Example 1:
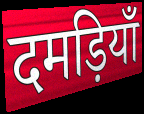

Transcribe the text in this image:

दमड़ियाँ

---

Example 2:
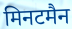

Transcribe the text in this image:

मिनटमैन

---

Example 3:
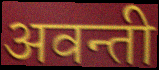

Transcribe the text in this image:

अवन्ती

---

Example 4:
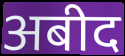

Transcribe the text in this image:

अबीद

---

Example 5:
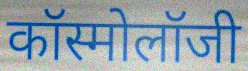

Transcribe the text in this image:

कॉस्मोलॉजी